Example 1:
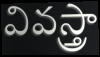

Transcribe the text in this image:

వివస్త్రా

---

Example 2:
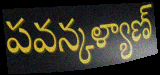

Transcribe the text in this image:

పవన్కళ్యాణ్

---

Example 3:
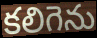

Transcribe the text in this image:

కలిగెను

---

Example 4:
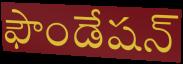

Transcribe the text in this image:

ఫౌండేషన్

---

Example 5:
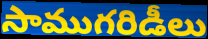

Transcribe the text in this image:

సాముగరిడీలు